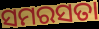
ସମରସତା